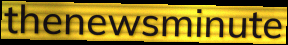
thenewsminute